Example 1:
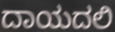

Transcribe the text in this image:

ದಾಯದಲಿ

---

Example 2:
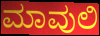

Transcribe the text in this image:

ಮಾವುಲಿ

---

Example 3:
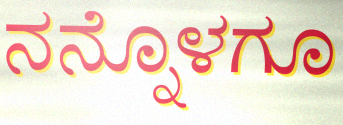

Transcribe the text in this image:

ನನ್ನೊಳಗೂ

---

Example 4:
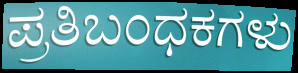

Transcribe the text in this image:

ಪ್ರತಿಬಂಧಕಗಳು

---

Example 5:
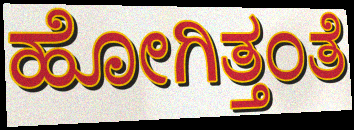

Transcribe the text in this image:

ಹೋಗಿತ್ತಂತೆ